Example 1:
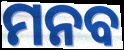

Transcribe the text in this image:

ମନବ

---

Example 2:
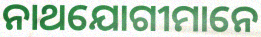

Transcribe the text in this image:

ନାଥଯୋଗୀମାନେ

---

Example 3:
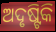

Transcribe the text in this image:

ଅଦୃଷ୍ଟିକି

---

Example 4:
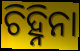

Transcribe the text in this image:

ଚିହ୍ନିନା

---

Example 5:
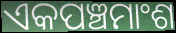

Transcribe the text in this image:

ଏକପଞ୍ଚମାଂଶ